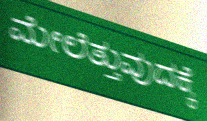
ಮೇಲೆತ್ತುವುದಕ್ಕೆ